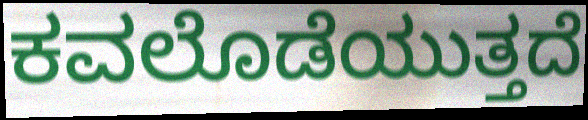
ಕವಲೊಡೆಯುತ್ತದೆ